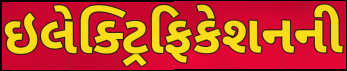
ઇલેક્ટ્રિફિકેશનની